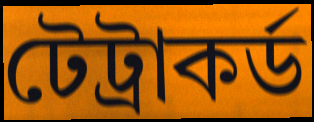
টেট্ৰাকৰ্ড